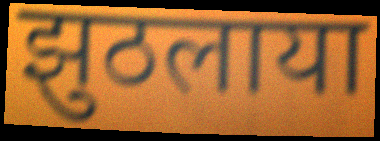
झुठलाया